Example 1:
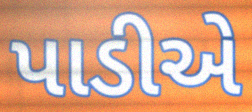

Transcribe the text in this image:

પાડીએ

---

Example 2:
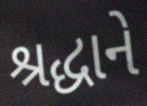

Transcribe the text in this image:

શ્રદ્ધાને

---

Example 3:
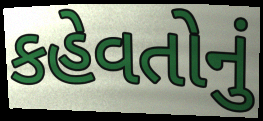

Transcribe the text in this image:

કહેવતોનું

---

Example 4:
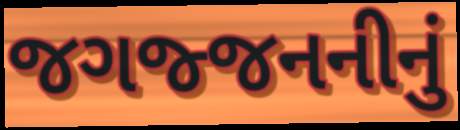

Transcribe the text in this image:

જગજ્જનનીનું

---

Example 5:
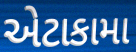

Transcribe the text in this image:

એટાકામા